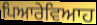
ਪਿਆਰੇਵਿਆਹ